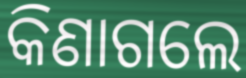
କିଣାଗଲେ